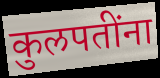
कुलपतींना